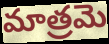
మాత్రమె